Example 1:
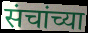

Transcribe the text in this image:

संचांच्या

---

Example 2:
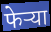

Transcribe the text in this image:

फेऱ्या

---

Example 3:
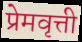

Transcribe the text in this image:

प्रेमवृत्ती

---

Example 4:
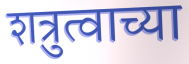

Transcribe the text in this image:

शत्रुत्वाच्या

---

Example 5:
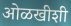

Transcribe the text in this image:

ओळखीशी